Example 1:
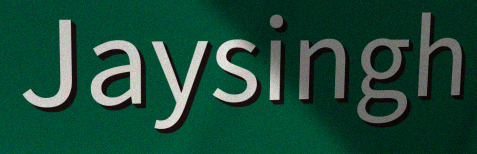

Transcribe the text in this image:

Jaysingh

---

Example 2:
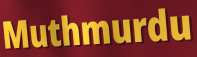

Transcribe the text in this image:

Muthmurdu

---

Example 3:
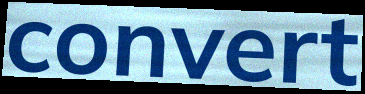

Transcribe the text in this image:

convert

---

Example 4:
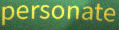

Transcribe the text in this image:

personate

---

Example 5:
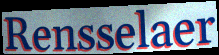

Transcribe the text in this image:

Rensselaer